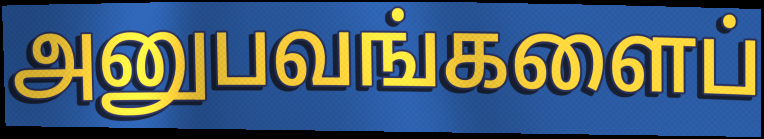
அனுபவங்களைப்